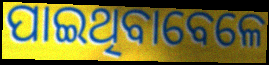
ପାଇଥିବାବେଳେ